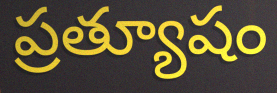
ప్రత్యూషం